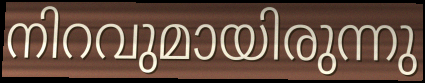
നിറവുമായിരുന്നു